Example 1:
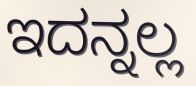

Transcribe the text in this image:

ಇದನ್ನಲ್ಲ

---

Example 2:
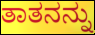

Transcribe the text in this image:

ತಾತನನ್ನು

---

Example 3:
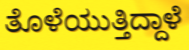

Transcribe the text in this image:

ತೊಳೆಯುತ್ತಿದ್ದಾಳೆ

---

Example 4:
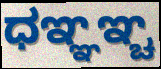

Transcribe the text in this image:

ಧಞ್ಞಞ್ಚ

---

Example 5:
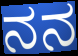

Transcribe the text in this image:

ನನ